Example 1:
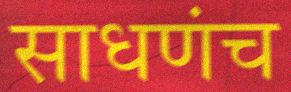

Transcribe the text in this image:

साधणंच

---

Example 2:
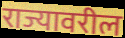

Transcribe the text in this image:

राज्यावरील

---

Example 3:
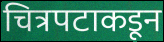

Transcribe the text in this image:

चित्रपटाकडून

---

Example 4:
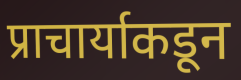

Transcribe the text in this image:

प्राचार्याकडून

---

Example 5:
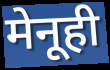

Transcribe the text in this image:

मेनूही